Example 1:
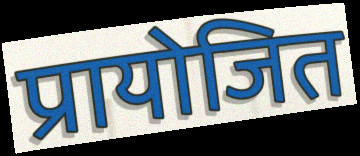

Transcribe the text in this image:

प्रायोजित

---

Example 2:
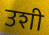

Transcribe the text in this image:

उशी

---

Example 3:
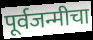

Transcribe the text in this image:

पूर्वजन्मीचा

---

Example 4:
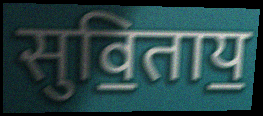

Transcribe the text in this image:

सुवि॒ताय॒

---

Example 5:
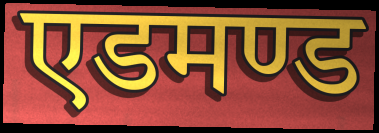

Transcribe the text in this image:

एडमण्ड